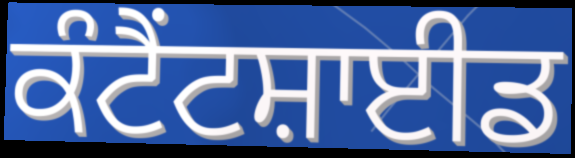
ਕੰਟੈਂਟਸ਼ਾਈਡ